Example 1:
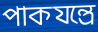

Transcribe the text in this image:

পাকযন্ত্রে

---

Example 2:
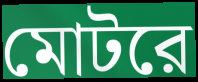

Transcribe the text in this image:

মোটরে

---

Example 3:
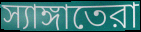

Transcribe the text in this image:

স্যাঙ্গাতেরা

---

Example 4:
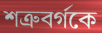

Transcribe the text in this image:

শত্রুবর্গকে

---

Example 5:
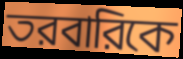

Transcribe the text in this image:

তরবারিকে